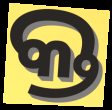
କ୍ତ